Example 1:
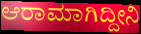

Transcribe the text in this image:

ಆರಾಮಾಗಿದ್ದೀನಿ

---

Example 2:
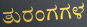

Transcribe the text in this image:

ತುರಂಗಗಳ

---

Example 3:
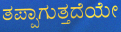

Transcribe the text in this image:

ತಪ್ಪಾಗುತ್ತದೆಯೇ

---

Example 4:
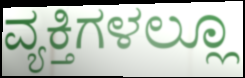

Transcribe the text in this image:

ವ್ಯಕ್ತಿಗಳಲ್ಲೂ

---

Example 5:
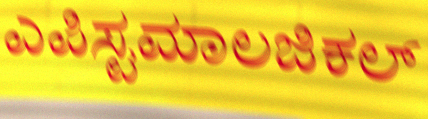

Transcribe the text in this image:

ಎಪಿಸ್ಟಮಾಲಜಿಕಲ್